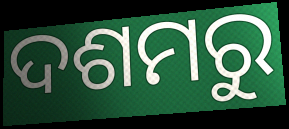
ଦଶମରୁ